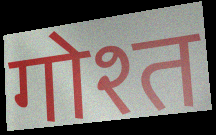
गोश्त